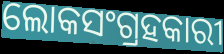
ଲୋକସଂଗ୍ରହକାରୀ